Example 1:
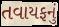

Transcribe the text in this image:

તવાયફનું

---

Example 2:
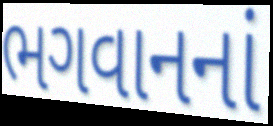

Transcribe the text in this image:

ભગવાનનાં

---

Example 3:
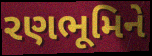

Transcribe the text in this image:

રણભૂમિને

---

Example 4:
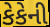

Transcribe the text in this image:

કેકેની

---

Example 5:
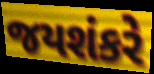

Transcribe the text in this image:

જયશંકરે